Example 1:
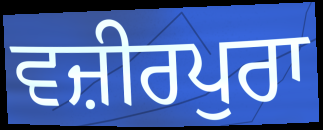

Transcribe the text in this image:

ਵਜ਼ੀਰਪੁਰਾ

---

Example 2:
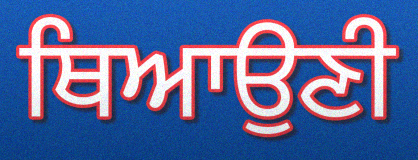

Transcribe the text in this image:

ਥਿਆਉਣੀ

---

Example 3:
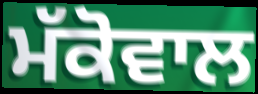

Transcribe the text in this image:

ਮੱਕੋਵਾਲ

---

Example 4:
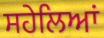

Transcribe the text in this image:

ਸਹੇਲਿਆਂ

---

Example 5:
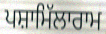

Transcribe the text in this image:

ਪਸ਼ਾਮਿੱਲਾਰਾਮ